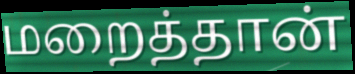
மறைத்தான்